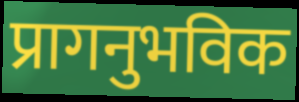
प्रागनुभविक